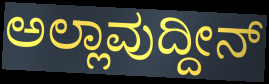
ಅಲ್ಲಾವುದ್ದೀನ್